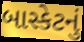
બાસ્કેટનું